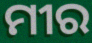
ମୀର